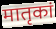
मातृकां